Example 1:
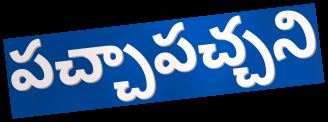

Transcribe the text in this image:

పచ్చాపచ్చని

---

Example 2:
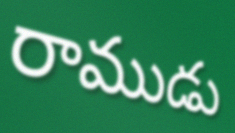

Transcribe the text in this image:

రాముడు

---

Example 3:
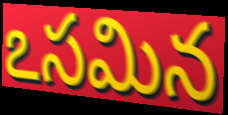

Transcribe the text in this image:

ఽసమిన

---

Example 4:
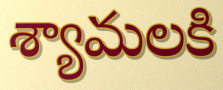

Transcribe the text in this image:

శ్యామలకి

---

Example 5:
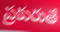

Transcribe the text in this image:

ప్రకురుతే